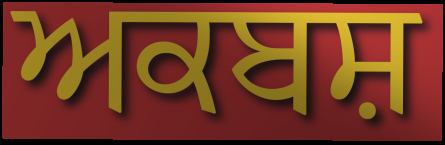
ਅਕਬਸ਼